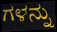
ಗಳನ್ನು